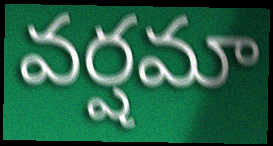
వర్షమా